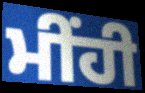
ਮੀਂਹੀ